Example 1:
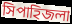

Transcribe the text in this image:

সিপাহিজলা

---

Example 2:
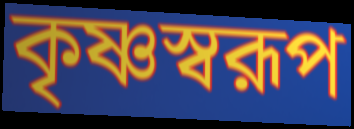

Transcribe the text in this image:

কৃষ্ণস্বরূপ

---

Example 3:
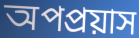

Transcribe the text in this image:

অপপ্রয়াস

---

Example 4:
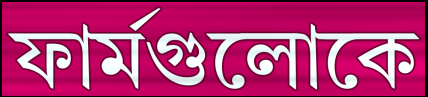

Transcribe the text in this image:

ফার্মগুলোকে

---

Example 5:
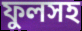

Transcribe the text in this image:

ফুলসহ